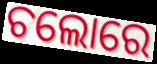
ଚଲୋରେ